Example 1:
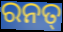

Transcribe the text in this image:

ରନତ୍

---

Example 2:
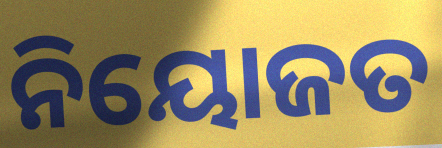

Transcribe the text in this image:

ନିୟୋଜତ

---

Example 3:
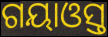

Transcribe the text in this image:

ଗୟାଓସ୍ତ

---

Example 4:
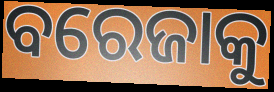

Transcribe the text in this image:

ବରେଜାକୁ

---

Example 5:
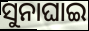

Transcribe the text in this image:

ସୁନାଘାଇ